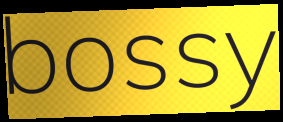
bossy